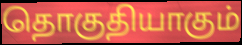
தொகுதியாகும்